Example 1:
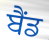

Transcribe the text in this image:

ਬੈੰਡ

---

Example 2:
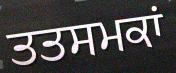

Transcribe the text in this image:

ਤਤਸਮਕਾਂ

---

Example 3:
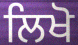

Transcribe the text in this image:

ਲਿਖੋ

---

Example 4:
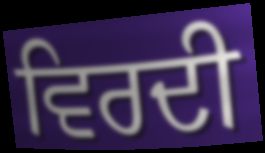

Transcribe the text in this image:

ਵਿਰਦੀ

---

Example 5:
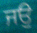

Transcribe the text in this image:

ਜਉ